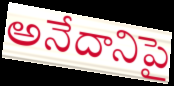
అనేదానిపై